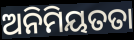
ଅନିମିୟତତା